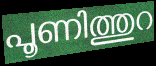
പൂണിത്തുറ